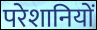
परेशानियों